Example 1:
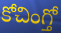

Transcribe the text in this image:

కోచింగ్తో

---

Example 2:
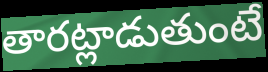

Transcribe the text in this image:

తారట్లాడుతుంటే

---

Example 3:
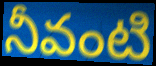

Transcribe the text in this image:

నీవంటి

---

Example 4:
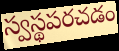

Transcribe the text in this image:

స్వస్థపరచడం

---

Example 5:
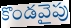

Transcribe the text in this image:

కొండవైపు